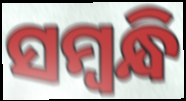
ସମ୍ବନ୍ଧି